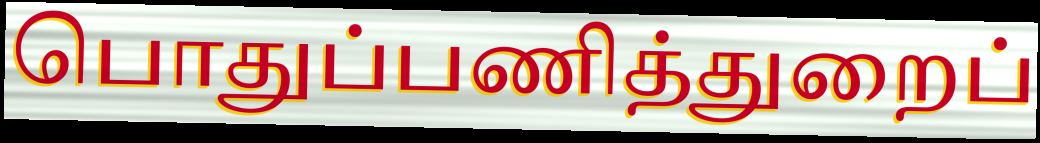
பொதுப்பணித்துறைப்